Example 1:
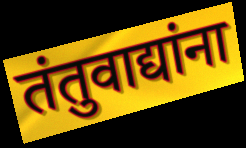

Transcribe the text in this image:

तंतुवाद्यांना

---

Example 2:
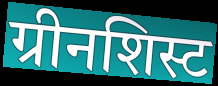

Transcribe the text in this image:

ग्रीनशिस्ट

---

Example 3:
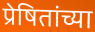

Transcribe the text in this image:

प्रेषितांच्या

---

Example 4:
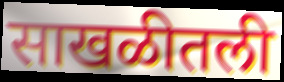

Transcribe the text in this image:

साखळीतली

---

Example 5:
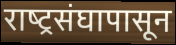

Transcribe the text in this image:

राष्ट्रसंघापासून